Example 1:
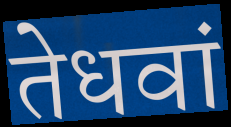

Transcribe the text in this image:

तेधवां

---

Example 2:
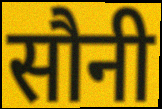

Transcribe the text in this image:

सौनी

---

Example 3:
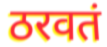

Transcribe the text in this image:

ठरवतं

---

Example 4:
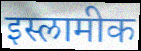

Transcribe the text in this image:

इस्लामीक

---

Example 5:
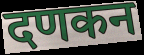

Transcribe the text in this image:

दणकन